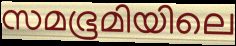
സമഭൂമിയിലെ